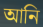
আনি